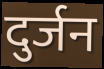
दुर्जन